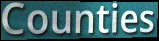
Counties